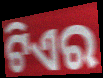
ଟିଏର